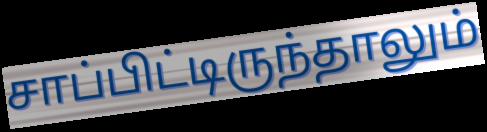
சாப்பிட்டிருந்தாலும்